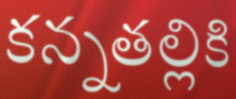
కన్నతల్లికి